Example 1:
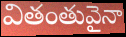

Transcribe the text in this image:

వితంతువైనా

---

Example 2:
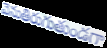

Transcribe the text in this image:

వెనుతిరుగుతుండగా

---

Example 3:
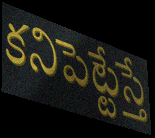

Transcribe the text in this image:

కనిపెట్టేస్తే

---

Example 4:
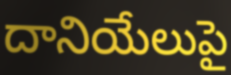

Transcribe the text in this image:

దానియేలుపై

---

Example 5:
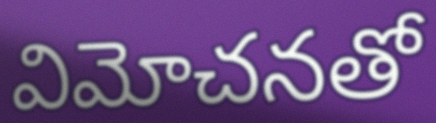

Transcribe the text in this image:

విమోచనతో